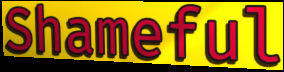
Shameful